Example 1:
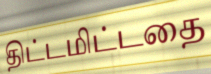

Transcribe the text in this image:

திட்டமிட்டதை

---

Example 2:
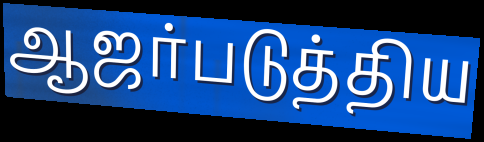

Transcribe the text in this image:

ஆஜர்படுத்திய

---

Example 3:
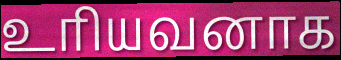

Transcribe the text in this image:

உரியவனாக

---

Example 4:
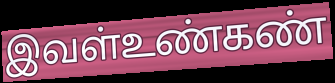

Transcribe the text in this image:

இவள்உண்கண்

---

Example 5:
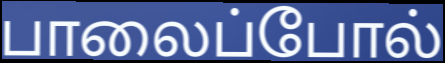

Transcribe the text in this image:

பாலைப்போல்